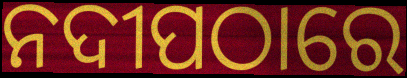
ନଦୀପଠାରେ